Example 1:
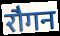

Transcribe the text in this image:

रौगन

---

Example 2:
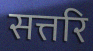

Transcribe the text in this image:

सत्तरि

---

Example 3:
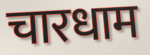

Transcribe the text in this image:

चारधाम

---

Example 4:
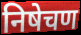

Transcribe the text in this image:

निषेचण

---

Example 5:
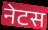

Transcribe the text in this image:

नेटस